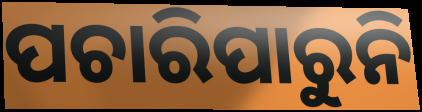
ପଚାରିପାରୁନି